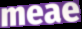
meae